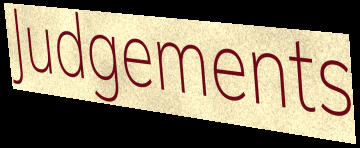
Judgements